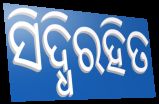
ସିଦ୍ଧିରହିତ